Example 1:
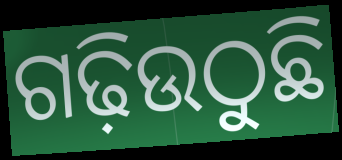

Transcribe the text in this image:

ଗଢ଼ିଉଠୁଛି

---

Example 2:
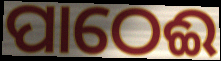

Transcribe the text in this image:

ପାଠେଈ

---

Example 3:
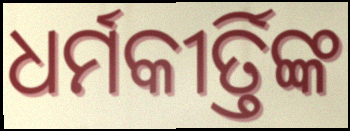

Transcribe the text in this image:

ଧର୍ମକୀର୍ତ୍ତିଙ୍କ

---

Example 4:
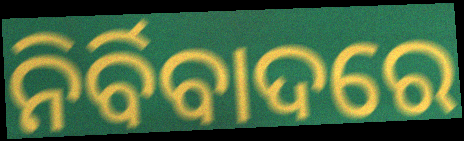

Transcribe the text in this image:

ନିର୍ବିବାଦରେ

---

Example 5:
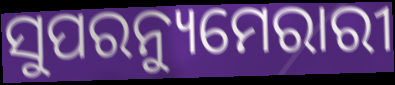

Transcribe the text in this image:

ସୁପରନ୍ୟୁମେରାରୀ